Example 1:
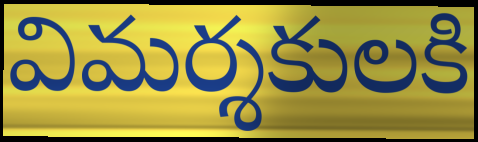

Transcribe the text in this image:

విమర్శకులకి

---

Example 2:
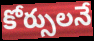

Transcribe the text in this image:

కోర్సులనే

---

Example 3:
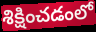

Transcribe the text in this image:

శిక్షించడంలో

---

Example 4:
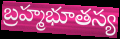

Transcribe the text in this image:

బ్రహ్మభూతస్య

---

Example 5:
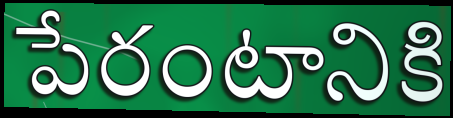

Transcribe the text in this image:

పేరంటానికి